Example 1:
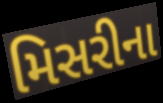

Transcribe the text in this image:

મિસરીના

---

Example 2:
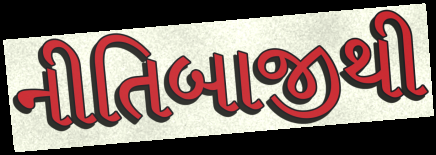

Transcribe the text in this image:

નીતિબાજીથી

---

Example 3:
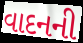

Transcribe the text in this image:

વાદનની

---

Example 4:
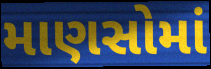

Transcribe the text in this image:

માણસોમાં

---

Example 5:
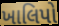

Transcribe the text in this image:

ખાલિપો